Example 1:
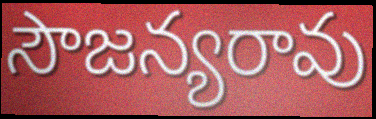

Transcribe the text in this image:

సౌజన్యరావు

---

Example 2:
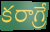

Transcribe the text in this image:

కరాగ్రే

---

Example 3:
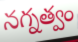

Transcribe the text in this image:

నగ్నత్వం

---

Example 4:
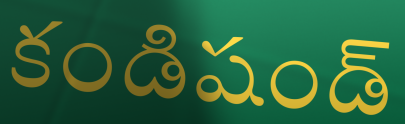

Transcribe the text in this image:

కండిషండ్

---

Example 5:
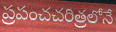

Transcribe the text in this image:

ప్రపంచచరిత్రలోనే